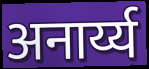
अनार्य्य